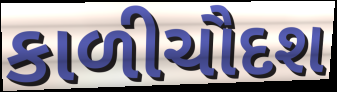
કાળીચૌદશ